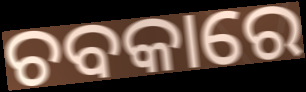
ଚବକାରେ